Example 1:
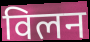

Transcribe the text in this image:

विलन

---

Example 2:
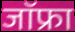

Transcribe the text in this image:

जॉफ्रा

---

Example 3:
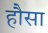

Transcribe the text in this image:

हौसा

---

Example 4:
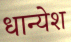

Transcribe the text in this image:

धान्येश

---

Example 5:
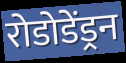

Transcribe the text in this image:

रोडोडेंड्रन